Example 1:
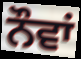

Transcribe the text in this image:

ਨੌਵਾਂ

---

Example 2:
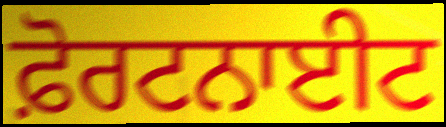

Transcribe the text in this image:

ਫ਼ੋਰਟਨਾਈਟ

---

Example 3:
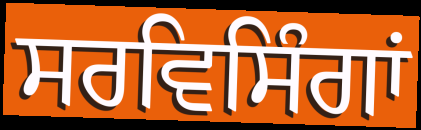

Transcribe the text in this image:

ਸਰਵਿਸਿੰਗਾਂ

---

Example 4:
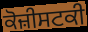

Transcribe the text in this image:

ਕੋਜ਼ੀਸਟਕੀ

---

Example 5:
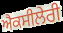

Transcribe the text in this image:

ਐਕਸੀਲੇਰੀ